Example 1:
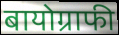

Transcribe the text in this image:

बायोग्राफी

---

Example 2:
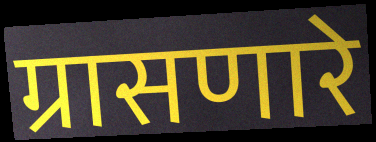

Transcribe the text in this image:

ग्रासणारे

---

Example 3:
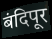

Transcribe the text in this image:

बंदिपूर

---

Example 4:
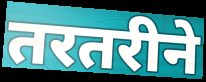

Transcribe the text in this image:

तरतरीने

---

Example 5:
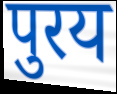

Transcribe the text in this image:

पुरय